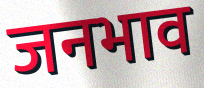
जनभाव